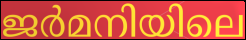
ജർമനിയിലെ